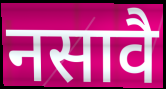
नसावै